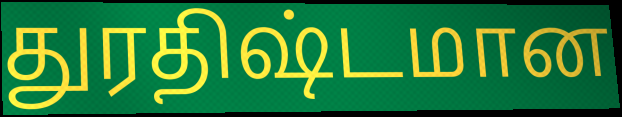
துரதிஷ்டமான